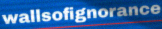
wallsofignorance